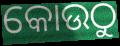
କୋଉଠୁ